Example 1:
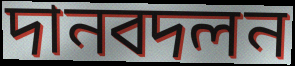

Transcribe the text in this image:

দানবদলন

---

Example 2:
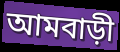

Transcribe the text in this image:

আমবাড়ী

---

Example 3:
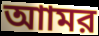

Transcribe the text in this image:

আামর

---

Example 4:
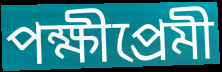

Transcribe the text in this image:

পক্ষীপ্রেমী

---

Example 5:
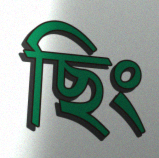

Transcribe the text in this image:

ছিং